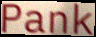
Pank